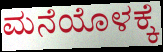
ಮನೆಯೊಳಕ್ಕೆ